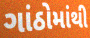
ગાંઠોમાંથી